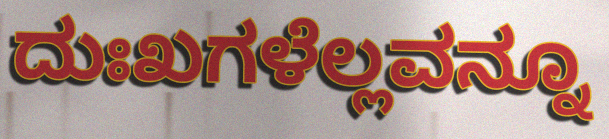
ದುಃಖಗಳೆಲ್ಲವನ್ನೂ